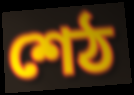
শেঠ